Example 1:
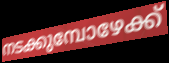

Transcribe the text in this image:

നടക്കുമ്പോഴേക്ക്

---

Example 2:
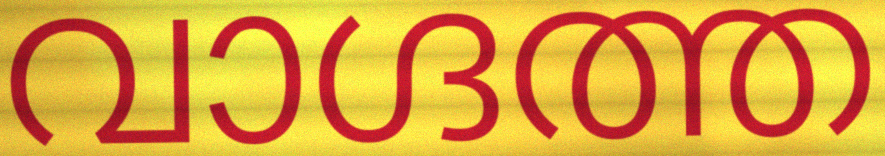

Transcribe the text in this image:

വാഗ്ദത്ത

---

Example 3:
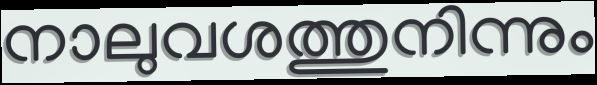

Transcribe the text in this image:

നാലുവശത്തുനിന്നും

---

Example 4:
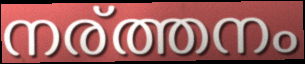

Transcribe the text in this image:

നര്ത്തനം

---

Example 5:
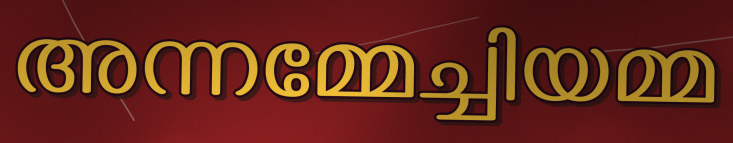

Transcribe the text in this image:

അന്നമ്മേച്ചിയമ്മ